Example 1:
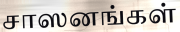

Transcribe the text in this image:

சாஸனங்கள்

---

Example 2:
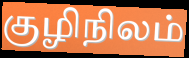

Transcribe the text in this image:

குழிநிலம்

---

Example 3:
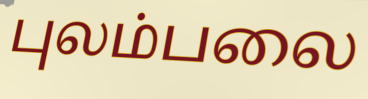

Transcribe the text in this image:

புலம்பலை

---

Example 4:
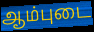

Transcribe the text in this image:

ஆம்புடை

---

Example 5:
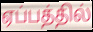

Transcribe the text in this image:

ஏப்பத்தில்